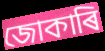
জোকাৰি